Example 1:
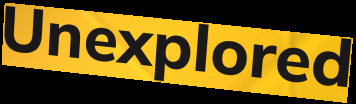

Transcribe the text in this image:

Unexplored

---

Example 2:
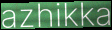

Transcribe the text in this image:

azhikka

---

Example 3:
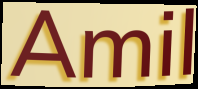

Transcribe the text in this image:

Amil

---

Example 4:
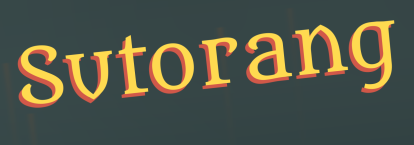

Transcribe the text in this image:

Sutorang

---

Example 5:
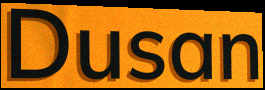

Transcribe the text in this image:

Dusan